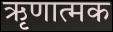
ऋृणात्मक